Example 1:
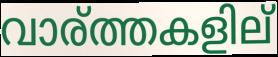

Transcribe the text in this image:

വാര്ത്തകളില്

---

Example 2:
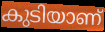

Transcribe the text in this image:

കുടിയാണ്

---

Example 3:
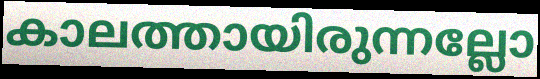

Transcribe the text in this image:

കാലത്തായിരുന്നല്ലോ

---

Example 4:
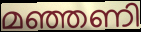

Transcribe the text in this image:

മഞ്ഞണി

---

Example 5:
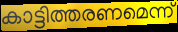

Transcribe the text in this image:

കാട്ടിത്തരണമെന്ന്